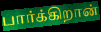
பார்க்கிறான்